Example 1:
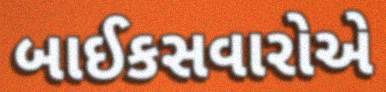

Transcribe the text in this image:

બાઈકસવારોએ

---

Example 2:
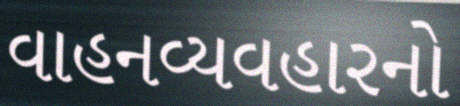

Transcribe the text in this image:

વાહનવ્યવહારનો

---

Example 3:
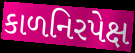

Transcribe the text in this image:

કાળનિરપેક્ષ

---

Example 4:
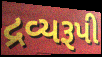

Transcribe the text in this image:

દ્રવ્યરૂપી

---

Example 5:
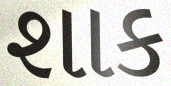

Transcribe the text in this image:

શાક